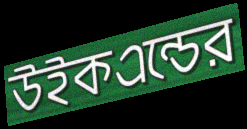
উইকএন্ডের